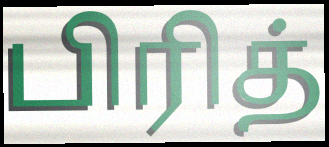
பிரித்